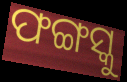
ଫଙ୍ଗସ୍କୁ